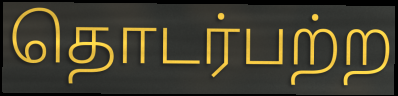
தொடர்பற்ற